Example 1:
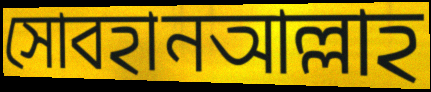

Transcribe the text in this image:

সোবহানআল্লাহ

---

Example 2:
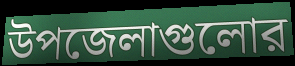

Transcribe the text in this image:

উপজেলাগুলোর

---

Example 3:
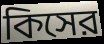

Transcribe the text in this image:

কিসের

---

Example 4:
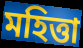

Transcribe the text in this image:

মহিত্তা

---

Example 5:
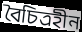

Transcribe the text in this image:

বৈচিত্রহীন